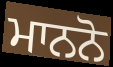
ਮਾਨਨੋ